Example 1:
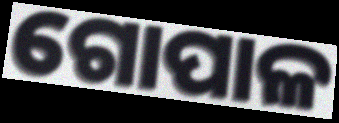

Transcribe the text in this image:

ଗୋପାଳ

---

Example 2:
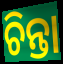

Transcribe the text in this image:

ଚିନ୍ତା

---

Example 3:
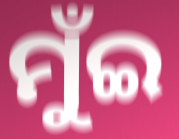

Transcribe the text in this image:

ମୁଁଇ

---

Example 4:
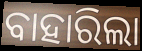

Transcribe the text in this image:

ବାହାରିଲା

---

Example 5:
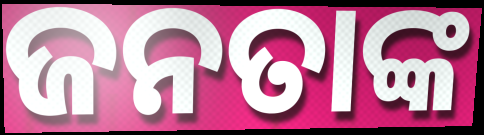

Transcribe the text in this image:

ଜନତାଙ୍କ